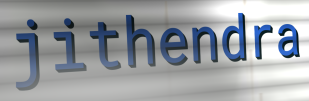
jithendra